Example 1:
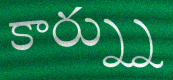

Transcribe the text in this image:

కార్న్ను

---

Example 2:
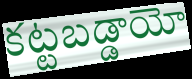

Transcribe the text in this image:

కట్టబడ్డాయో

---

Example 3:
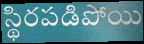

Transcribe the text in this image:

స్థిరపడిపోయి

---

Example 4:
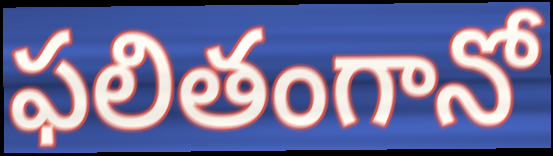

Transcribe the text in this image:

ఫలితంగానో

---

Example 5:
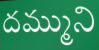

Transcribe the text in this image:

దమ్ముని